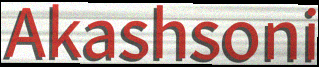
Akashsoni